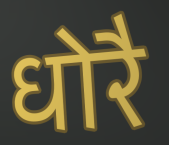
धोरै